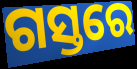
ଗସ୍ତରେ